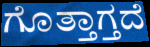
ಗೊತ್ತಾಗ್ತದೆ